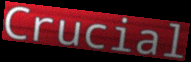
Crucial